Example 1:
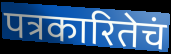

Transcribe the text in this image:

पत्रकारितेचं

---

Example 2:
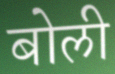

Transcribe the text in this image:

बोली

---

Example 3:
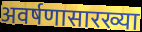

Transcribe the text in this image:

अवर्षणासारख्या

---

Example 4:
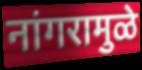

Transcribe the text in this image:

नांगरामुळे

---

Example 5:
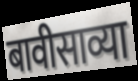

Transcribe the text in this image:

बावीसाव्या